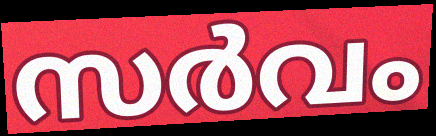
സർവം